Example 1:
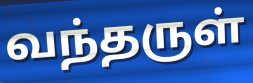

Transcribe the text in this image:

வந்தருள்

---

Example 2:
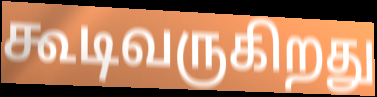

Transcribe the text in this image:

கூடிவருகிறது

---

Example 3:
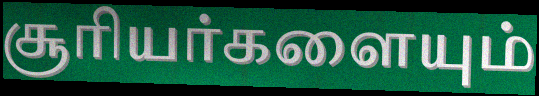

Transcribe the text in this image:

சூரியர்களையும்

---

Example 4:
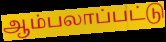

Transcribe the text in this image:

ஆம்பலாப்பட்டு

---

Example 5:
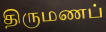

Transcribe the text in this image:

திருமணப்